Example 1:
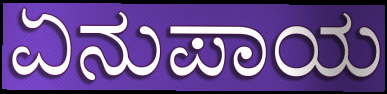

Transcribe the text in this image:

ಏನುಪಾಯ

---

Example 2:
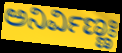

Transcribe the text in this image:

ಅನಿರ್ವಿಣ್ಣಃ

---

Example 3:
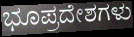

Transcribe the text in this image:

ಭೂಪ್ರದೇಶಗಳು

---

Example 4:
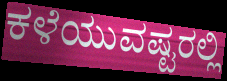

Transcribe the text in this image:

ಕಳೆಯುವಷ್ಟರಲ್ಲಿ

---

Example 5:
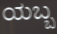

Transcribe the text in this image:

ಯಬ್ಬ